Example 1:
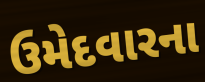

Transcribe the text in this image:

ઉમેદવારના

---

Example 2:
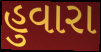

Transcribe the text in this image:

હુવારા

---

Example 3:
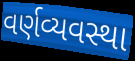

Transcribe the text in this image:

વર્ણવ્યવસ્થા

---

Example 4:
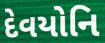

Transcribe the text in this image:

દેવયોનિ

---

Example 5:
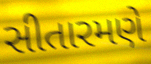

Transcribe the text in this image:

સીતારમણે